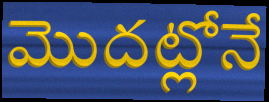
మొదట్లోనే